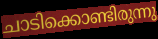
ചാടിക്കൊണ്ടിരുന്നു